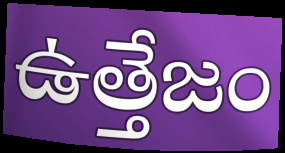
ఉత్తేజం